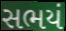
સભયં